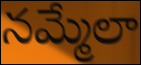
నమ్మేలా